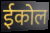
ईकोल